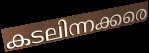
കടലിന്നക്കരെ